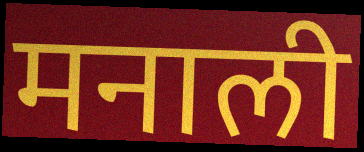
मनाली